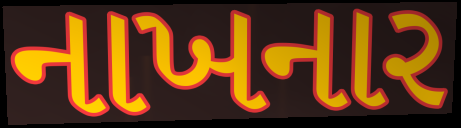
નાખનાર